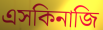
এসকিনাজি